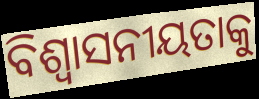
ବିଶ୍ୱାସନୀୟତାକୁ